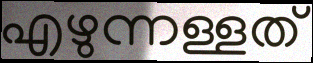
എഴുന്നള്ളത്